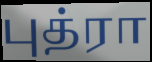
புத்ரா